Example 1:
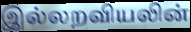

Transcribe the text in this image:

இல்லறவியலின்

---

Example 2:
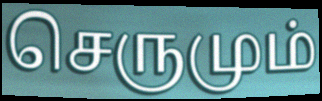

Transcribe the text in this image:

செருமும்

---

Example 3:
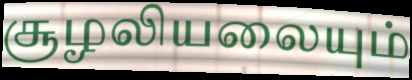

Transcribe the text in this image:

சூழலியலையும்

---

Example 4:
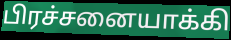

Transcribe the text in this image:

பிரச்சனையாக்கி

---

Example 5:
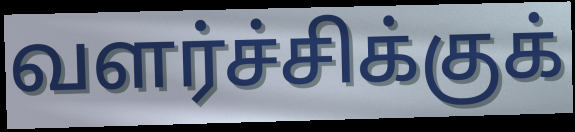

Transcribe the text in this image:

வளர்ச்சிக்குக்